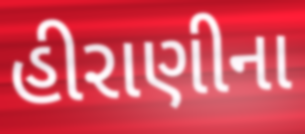
હીરાણીના